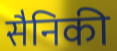
सैनिकी